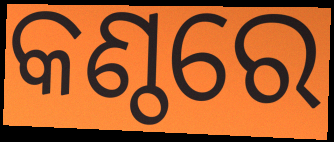
କଣ୍ଠରେ